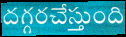
దగ్గరచేస్తుంది